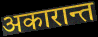
अकारान्त